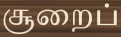
சூறைப்